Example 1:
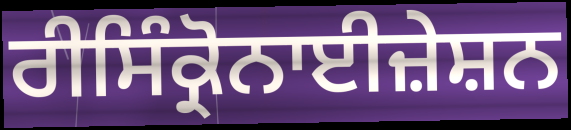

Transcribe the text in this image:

ਰੀਸਿੰਕ੍ਰੋਨਾਈਜ਼ੇਸ਼ਨ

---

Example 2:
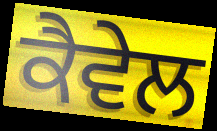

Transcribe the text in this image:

ਕੈਵੇਲ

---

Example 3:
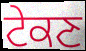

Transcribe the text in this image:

ਟੇਕਣ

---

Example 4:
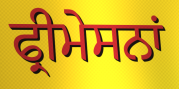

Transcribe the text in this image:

ਫ੍ਰੀਮੇਸਨਾਂ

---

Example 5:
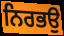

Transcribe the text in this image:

ਨਿਰਭਉ